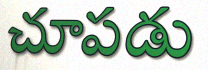
చూపడు